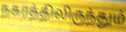
நகரத்திலிருந்தும்